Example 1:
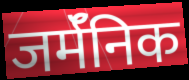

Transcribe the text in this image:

जर्मॅनिक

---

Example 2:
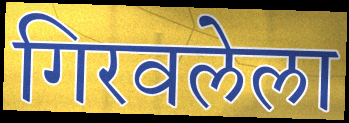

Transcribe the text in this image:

गिरवलेला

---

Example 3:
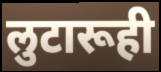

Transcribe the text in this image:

लुटारूही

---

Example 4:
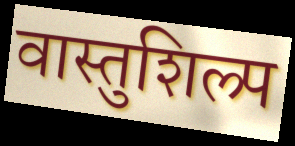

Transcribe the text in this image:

वास्तुशिल्प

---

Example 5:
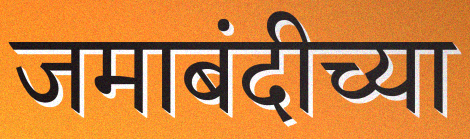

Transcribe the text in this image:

जमाबंदीच्या